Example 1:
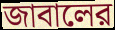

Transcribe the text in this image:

জাবালের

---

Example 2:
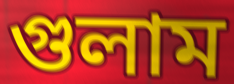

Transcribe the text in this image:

গুলাম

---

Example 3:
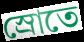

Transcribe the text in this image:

স্রোতে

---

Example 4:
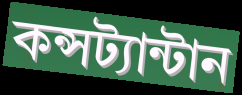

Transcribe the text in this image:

কন্সট্যান্টান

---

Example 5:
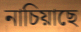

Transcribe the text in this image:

নাচিয়াছে